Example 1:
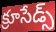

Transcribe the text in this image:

క్రూసేడ్స్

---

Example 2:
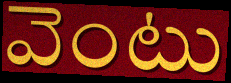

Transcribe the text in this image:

వెంటు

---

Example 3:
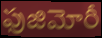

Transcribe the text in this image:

ఫుజిమోరీ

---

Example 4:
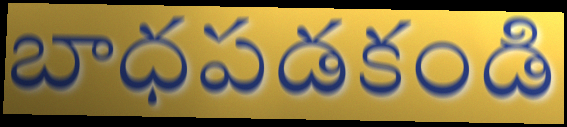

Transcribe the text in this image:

బాధపడకండి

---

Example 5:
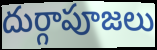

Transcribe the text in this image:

దుర్గాపూజలు